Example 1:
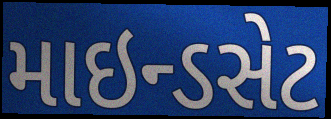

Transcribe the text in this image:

માઇન્ડસેટ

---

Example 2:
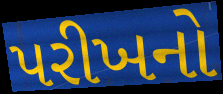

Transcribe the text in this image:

પરીખનો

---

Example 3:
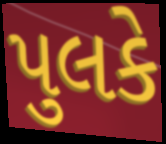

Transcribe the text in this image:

પુલકે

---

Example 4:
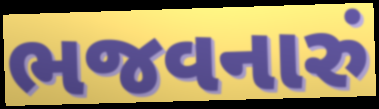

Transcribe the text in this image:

ભજવનારું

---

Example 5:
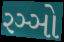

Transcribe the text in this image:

રઞ્ઞો